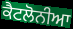
ਕੈਟਲੋਨੀਆ